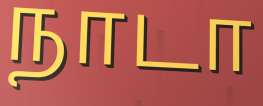
நாடா